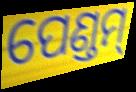
ପେଣ୍ଡମ୍